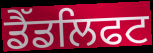
ਡੈੱਡਲਿਫਟ